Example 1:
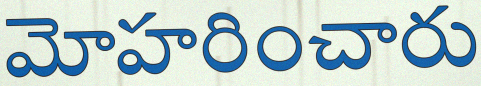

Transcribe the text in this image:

మోహరించారు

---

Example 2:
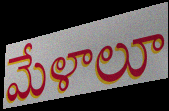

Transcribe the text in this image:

మేళాలూ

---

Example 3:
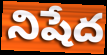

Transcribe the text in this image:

నిషేద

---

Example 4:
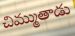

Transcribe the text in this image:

చిమ్ముతాడు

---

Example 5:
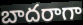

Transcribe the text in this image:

బాదరాగా